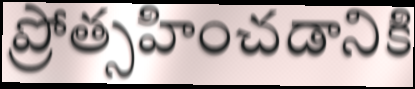
ప్రోత్సహించడానికి